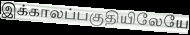
இக்காலப்பகுதியிலேயே